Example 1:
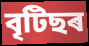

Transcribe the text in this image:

বৃটিছৰ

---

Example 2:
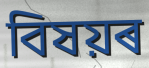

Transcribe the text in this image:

বিষয়ৰ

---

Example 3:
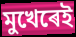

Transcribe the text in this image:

মুখেৰেই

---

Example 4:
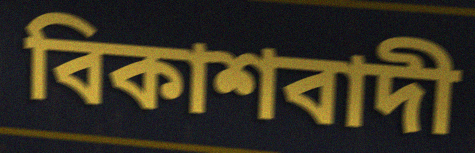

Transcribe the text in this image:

বিকাশবাদী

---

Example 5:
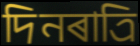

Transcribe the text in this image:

দিনৰাত্ৰি